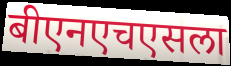
बीएनएचएसला